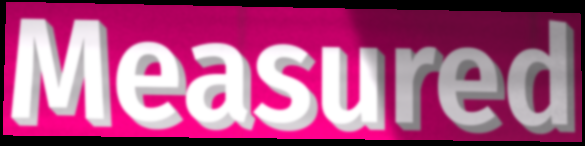
Measured